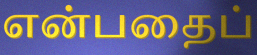
என்பதைப்